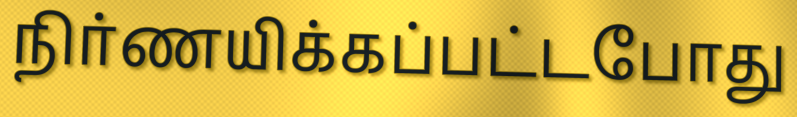
நிர்ணயிக்கப்பட்டபோது